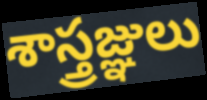
శాస్త్రజ్ఞులు